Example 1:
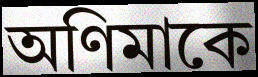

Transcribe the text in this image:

অণিমাকে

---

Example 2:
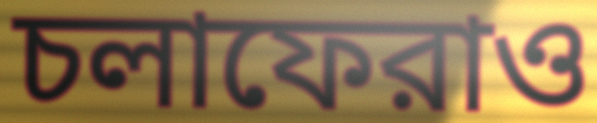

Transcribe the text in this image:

চলাফেরাও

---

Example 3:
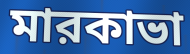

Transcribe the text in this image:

মারকাভা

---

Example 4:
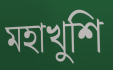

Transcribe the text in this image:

মহাখুশি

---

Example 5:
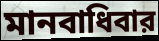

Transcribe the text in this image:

মানবাধিবার